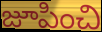
జూపించి